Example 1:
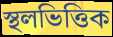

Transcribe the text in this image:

স্থলভিত্তিক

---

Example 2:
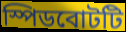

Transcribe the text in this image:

স্পিডবোটটি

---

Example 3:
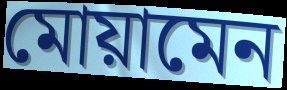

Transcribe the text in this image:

মোয়ামেন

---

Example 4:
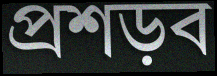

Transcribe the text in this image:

প্রশড়ব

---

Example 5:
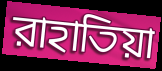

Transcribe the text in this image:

রাহাতিয়া